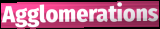
Agglomerations